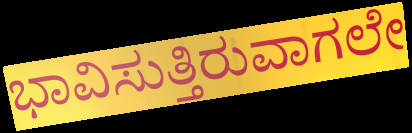
ಭಾವಿಸುತ್ತಿರುವಾಗಲೇ